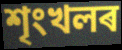
শৃংখলৰ